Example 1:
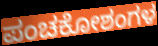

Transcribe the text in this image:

ಪಂಚಕೋಶಂಗಳ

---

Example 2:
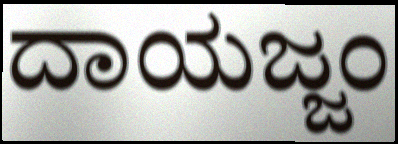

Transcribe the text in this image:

ದಾಯಜ್ಜಂ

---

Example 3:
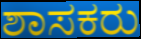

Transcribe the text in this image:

ಶಾಸಕರು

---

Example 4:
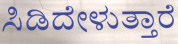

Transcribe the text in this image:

ಸಿಡಿದೇಳುತ್ತಾರೆ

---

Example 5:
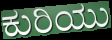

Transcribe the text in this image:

ಕುರಿಯು